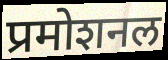
प्रमोशनल